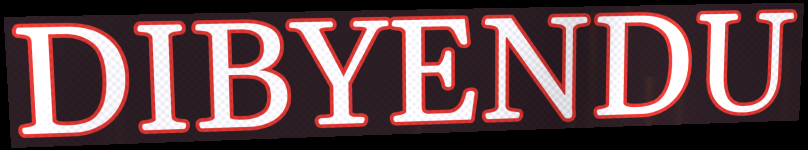
DIBYENDU